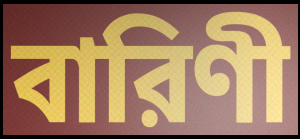
বারিণী